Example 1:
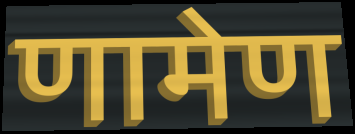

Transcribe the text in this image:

णामेण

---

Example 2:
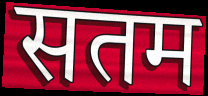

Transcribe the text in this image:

सतम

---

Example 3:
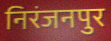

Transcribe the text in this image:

निरंजनपुर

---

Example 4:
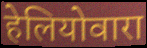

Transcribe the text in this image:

हेलियोवारा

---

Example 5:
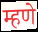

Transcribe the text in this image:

म्हणे